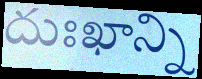
దుఃఖాన్ని